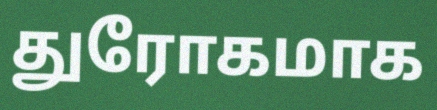
துரோகமாக